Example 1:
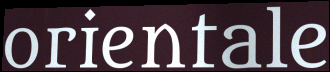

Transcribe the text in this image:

orientale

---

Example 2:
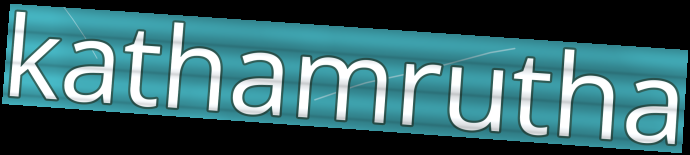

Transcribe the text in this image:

kathamrutha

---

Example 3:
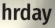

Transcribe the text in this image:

hrday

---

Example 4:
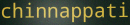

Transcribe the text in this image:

chinnappati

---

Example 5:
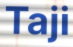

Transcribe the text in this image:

Taji